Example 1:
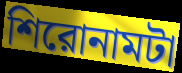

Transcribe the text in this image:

শিরোনামটা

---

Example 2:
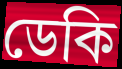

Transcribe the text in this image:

ডেকি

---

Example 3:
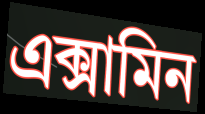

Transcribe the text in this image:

এক্সামিন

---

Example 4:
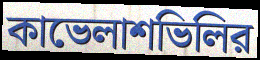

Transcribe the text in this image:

কাভেলাশভিলির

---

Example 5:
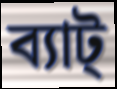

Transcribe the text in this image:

ব্যাট্